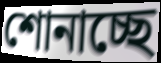
শোনাচ্ছে